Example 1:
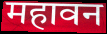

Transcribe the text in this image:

महावन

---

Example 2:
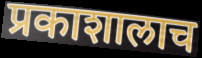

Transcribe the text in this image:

प्रकाशालाच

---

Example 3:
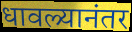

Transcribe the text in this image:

धावल्यानंतर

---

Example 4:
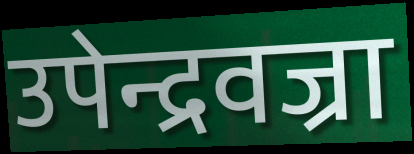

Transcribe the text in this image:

उपेन्द्रवज्रा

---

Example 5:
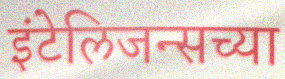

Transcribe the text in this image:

इंटेलिजन्सच्या